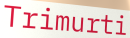
Trimurti